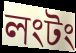
লংটং